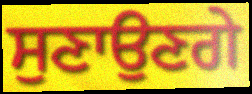
ਸੁਣਾਉਣਗੇ